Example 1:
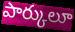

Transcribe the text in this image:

పార్కులూ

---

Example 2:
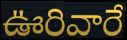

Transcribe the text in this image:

ఊరివారే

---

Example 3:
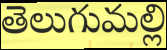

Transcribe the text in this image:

తెలుగుమల్లి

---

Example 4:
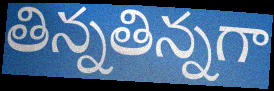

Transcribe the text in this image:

తిన్నతిన్నగా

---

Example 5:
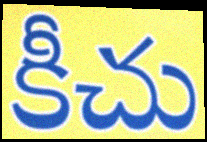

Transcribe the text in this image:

కీచు